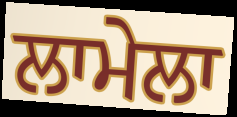
ਲਾਮੇਲਾ